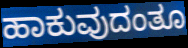
ಹಾಕುವುದಂತೂ